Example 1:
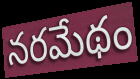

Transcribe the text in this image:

నరమేథం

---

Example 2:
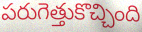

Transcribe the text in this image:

పరుగెత్తుకొచ్చింది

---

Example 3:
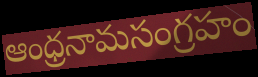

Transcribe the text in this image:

ఆంధ్రనామసంగ్రహం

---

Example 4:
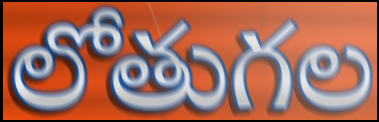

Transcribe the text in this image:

లోతుగల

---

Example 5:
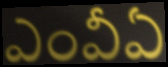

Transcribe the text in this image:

ఎంవీఏ